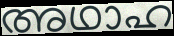
അഥാഹ